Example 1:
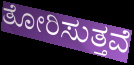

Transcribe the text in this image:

ತೋರಿಸುತ್ತವೆ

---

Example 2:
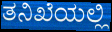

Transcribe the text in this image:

ತನಿಖೆಯಲ್ಲಿ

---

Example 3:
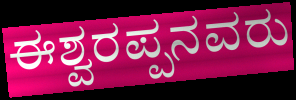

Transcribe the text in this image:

ಈಶ್ವರಪ್ಪನವರು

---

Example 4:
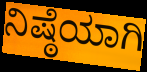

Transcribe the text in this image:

ನಿಷ್ಠೆಯಾಗಿ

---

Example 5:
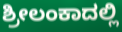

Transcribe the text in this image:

ಶ್ರೀಲಂಕಾದಲ್ಲಿ